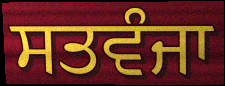
ਸਤਵੰਜਾ